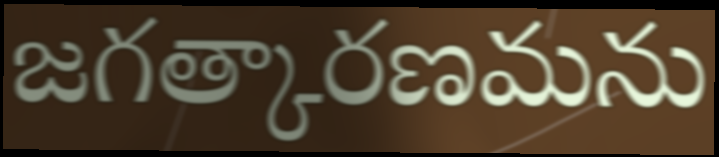
జగత్కారణమను